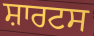
ਸ਼ਾਰਟਸ